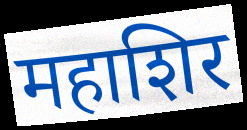
महाशिर